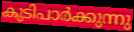
കുടിപാർക്കുന്നു